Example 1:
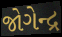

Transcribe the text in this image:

જોગેન્દ્ર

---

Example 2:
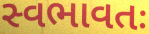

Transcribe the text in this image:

સ્વભાવતઃ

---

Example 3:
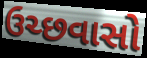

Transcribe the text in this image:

ઉચ્છવાસો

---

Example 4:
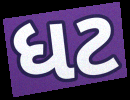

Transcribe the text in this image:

ધટ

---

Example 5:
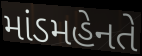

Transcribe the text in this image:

માંડમહેનતે